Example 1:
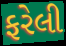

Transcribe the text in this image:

ફરેલી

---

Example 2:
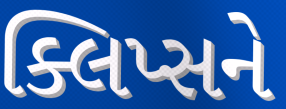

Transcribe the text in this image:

ક્લિપ્સને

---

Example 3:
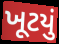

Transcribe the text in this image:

ખૂટયું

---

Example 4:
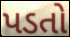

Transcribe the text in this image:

પડતો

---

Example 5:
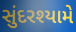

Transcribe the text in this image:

સુંદરશ્યામે